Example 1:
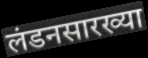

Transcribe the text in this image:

लंडनसारख्या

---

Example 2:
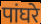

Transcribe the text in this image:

पांघरे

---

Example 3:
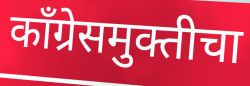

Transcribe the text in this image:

काँग्रेसमुक्तीचा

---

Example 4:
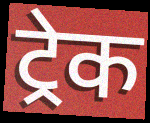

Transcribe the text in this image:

ट्रेक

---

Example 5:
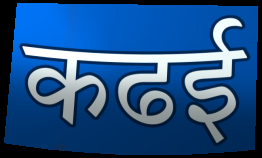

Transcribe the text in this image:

कढई